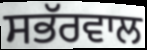
ਸਭੱਰਵਾਲ